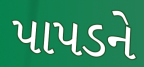
પાપડને